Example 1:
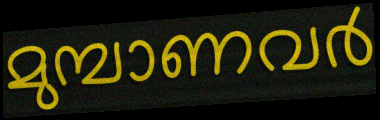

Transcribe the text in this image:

മുമ്പാണവർ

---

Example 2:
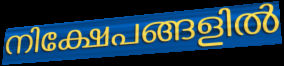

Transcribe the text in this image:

നിക്ഷേപങ്ങളിൽ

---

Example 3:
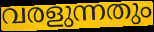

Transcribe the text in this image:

വരളുന്നതും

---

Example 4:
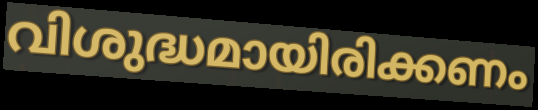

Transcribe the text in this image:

വിശുദ്ധമായിരിക്കണം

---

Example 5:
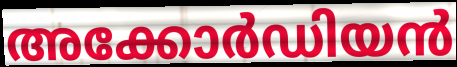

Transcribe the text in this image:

അക്കോർഡിയൻ